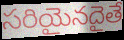
సరియైనదైతే